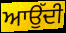
ਆਉੱਦੀ